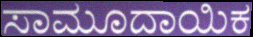
ಸಾಮೂದಾಯಿಕ